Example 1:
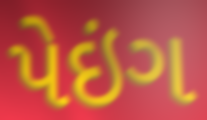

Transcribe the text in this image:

પેઇંગ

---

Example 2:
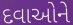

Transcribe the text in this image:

દવાઓને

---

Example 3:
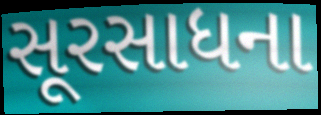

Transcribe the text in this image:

સૂરસાધના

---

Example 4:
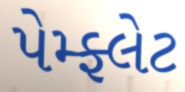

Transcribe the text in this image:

પેમ્ફ્લેટ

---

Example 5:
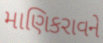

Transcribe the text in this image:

માણિકરાવને